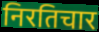
निरतिचार